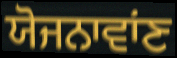
ਯੋਜਨਾਵਾਂਣ